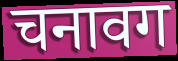
चनावग